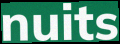
nuits